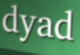
dyad